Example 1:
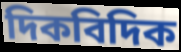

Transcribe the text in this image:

দিকবিদিক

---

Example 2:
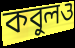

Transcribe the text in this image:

কবুলও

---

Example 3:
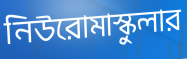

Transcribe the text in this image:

নিউরোমাস্কুলার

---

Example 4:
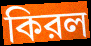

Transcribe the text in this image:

কিরল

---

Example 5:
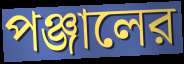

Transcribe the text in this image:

পঞ্জালের